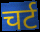
चर्ट